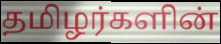
தமிழர்களின்